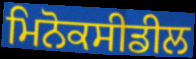
ਮਿਨੋਕਸੀਡੀਲ